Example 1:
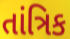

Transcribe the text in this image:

તાંત્રિક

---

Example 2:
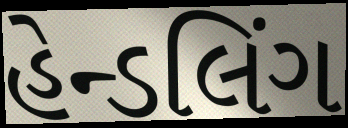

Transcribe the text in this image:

હેન્ડલિંગ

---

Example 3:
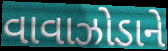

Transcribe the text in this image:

વાવાઝોડાને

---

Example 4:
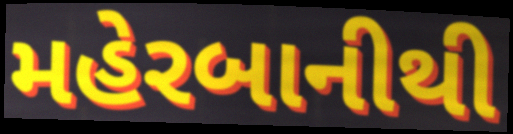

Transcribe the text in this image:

મહેરબાનીથી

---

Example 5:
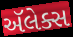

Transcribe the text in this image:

ઍલેક્સ